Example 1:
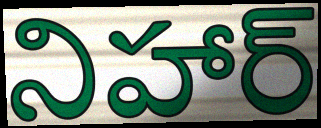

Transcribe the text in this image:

నిహార్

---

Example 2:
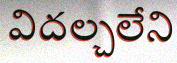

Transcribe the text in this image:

విదల్చలేని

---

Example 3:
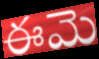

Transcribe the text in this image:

ఈమె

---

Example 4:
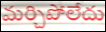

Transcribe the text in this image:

మర్చిపోలేదు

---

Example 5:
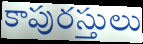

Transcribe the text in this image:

కాపురస్తులు